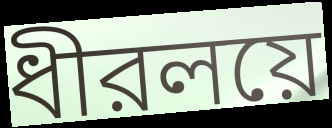
ধীরলয়ে